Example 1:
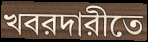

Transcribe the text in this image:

খবরদারীতে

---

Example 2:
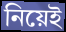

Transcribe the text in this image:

নিয়েই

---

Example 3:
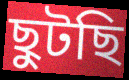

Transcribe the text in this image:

ছুটছি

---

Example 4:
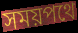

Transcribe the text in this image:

সময়পথে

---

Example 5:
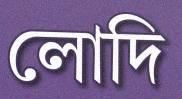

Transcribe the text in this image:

লোদি